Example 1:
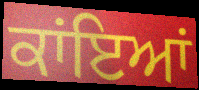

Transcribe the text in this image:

ਕਾਂਇਆਂ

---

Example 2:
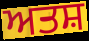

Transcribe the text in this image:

ਅਤਸ਼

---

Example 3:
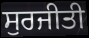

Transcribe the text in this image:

ਸੁਰਜੀਤੀ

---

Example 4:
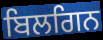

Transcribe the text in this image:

ਬਿਲਗਿਨ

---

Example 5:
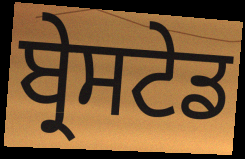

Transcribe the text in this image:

ਬ੍ਰੇਸਟੇਡ